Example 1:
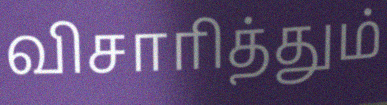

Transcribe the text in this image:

விசாரித்தும்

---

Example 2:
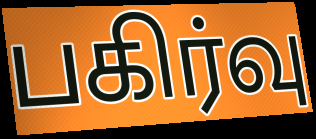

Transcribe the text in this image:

பகிர்வு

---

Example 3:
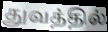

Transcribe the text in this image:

துவத்தில்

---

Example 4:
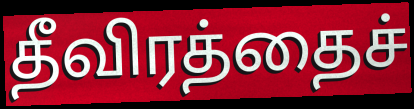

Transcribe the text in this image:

தீவிரத்தைச்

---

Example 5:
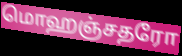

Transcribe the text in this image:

மொஹஞ்சதரோ